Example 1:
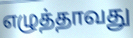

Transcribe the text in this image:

எழுத்தாவது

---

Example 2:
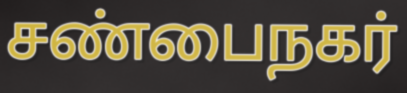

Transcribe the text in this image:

சண்பைநகர்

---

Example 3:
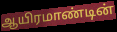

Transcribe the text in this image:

ஆயிரமாண்டின்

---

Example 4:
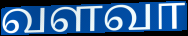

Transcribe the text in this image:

வளவா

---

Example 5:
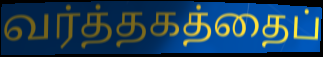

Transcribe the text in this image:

வர்த்தகத்தைப்